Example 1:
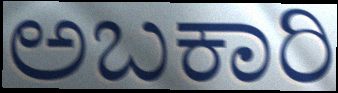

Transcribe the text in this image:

ಅಬಕಾರಿ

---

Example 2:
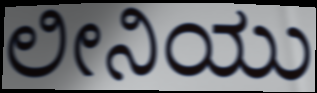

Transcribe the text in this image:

ಲೀನಿಯು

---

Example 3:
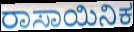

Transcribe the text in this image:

ರಾಸಾಯಿನಿಕ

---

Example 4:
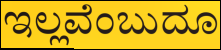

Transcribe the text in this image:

ಇಲ್ಲವೆಂಬುದೂ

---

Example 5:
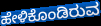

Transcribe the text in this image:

ಹೇಳಿಕೊಂಡಿರುವ